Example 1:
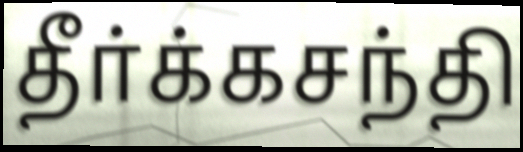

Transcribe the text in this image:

தீர்க்கசந்தி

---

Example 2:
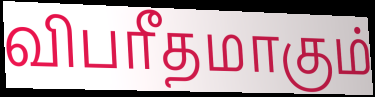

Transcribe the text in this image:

விபரீதமாகும்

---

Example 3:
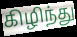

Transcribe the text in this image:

கிழிந்து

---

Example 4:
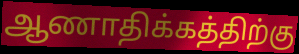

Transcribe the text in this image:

ஆணாதிக்கத்திற்கு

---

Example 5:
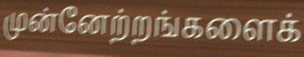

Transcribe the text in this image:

முன்னேற்றங்களைக்